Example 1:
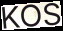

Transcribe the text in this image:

KOS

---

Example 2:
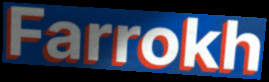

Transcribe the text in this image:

Farrokh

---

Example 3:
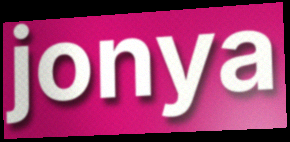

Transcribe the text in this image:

jonya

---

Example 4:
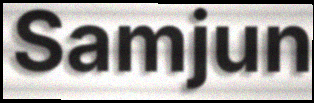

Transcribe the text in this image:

Samjun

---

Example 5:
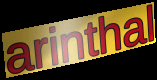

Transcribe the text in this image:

arinthal